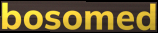
bosomed